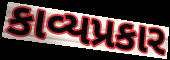
કાવ્યપ્રકાર